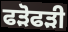
ਫੜੋਫੜੀ